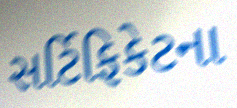
સર્ટિફિકેટના